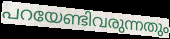
പറയേണ്ടിവരുന്നതും